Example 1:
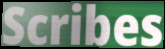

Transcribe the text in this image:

Scribes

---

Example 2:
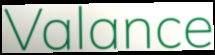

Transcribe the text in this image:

Valance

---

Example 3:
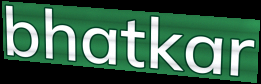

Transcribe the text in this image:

bhatkar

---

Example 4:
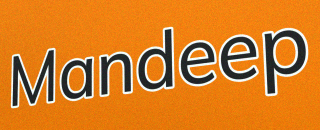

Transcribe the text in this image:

Mandeep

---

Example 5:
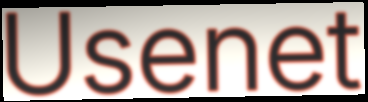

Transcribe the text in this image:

Usenet